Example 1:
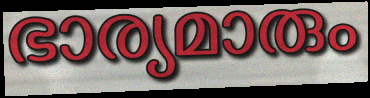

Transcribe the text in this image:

ഭാര്യമാരും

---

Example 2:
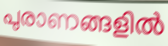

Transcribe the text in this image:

പുരാണങ്ങളിൽ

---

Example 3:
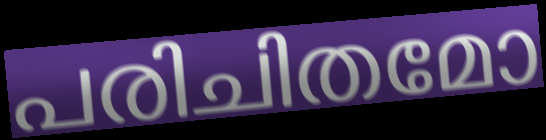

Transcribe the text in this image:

പരിചിതമോ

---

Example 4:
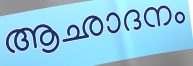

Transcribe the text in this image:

ആഛാദനം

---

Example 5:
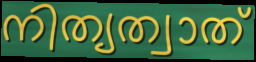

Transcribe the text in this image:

നിത്യത്വാത്